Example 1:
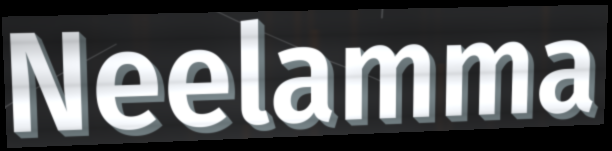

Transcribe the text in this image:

Neelamma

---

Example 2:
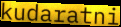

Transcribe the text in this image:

kudaratni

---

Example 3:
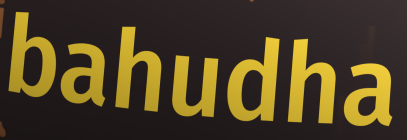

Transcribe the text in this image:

bahudha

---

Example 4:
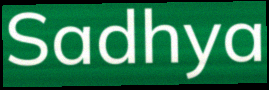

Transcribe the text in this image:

Sadhya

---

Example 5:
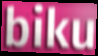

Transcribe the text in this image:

biku